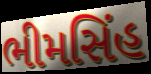
ભીમસિંહ